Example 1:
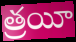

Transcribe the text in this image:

త్రయీ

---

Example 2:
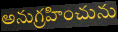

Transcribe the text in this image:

అనుగ్రహించును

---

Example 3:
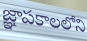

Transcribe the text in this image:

జ్ఞాపకాలలోని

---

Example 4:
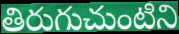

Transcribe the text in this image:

తిరుగుచుంటిని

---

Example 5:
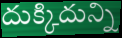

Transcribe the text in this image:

దుక్కిదున్ని